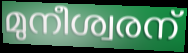
മുനീശ്വരന്